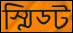
স্মিড্ট